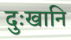
दुःखानि